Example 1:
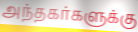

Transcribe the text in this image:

அந்தகர்களுக்கு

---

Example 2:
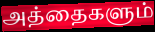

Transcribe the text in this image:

அத்தைகளும்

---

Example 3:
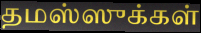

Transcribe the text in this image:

தமஸ்ஸுக்கள்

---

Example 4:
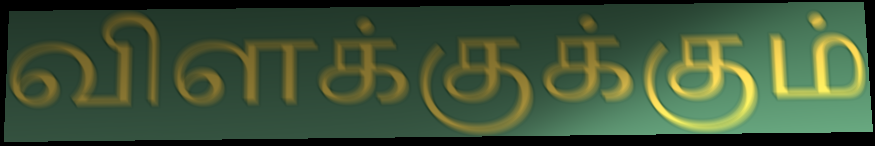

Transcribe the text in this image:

விளக்குக்கும்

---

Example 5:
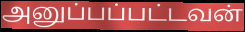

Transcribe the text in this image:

அனுப்பப்பட்டவன்